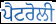
ਪੈਟਰੋਲੀ